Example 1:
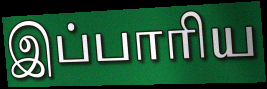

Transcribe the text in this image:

இப்பாரிய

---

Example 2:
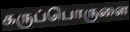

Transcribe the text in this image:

கருப்பொருளை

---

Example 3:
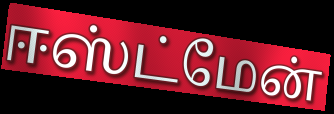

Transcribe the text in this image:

ஈஸ்ட்மேன்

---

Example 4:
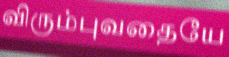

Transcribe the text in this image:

விரும்புவதையே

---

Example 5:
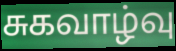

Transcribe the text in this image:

சுகவாழ்வு